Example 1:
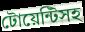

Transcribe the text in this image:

টোয়েন্টিসহ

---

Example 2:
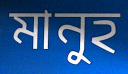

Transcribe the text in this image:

মানুহ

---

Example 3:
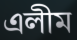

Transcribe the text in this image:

এলীম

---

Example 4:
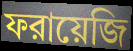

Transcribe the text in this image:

ফরায়েজি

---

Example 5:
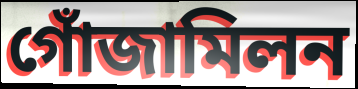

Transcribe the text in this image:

গোঁজামিলন